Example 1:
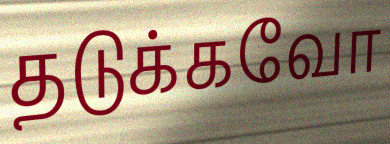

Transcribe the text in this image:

தடுக்கவோ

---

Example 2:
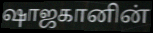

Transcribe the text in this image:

ஷாஜகானின்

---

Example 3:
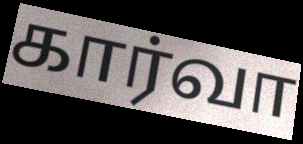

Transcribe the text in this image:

கார்வா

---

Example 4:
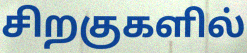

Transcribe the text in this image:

சிறகுகளில்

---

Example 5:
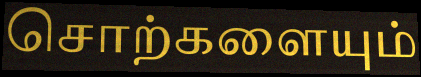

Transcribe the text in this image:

சொற்களையும்